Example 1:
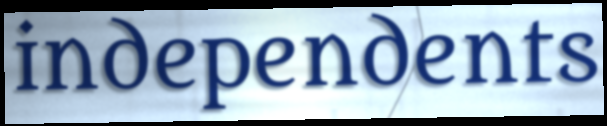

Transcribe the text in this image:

independents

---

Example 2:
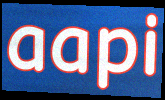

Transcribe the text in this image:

aapi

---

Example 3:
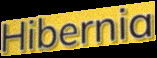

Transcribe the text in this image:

Hibernia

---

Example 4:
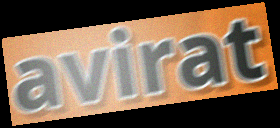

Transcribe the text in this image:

avirat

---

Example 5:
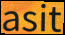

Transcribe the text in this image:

asit